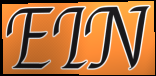
EIN